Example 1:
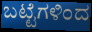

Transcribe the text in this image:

ಬಟ್ಟೆಗಳಿಂದ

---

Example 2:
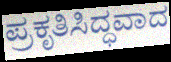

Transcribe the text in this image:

ಪ್ರಕೃತಿಸಿದ್ಧವಾದ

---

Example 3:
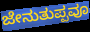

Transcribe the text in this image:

ಜೇನುತುಪ್ಪವೂ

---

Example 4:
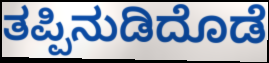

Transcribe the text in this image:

ತಪ್ಪಿನುಡಿದೊಡೆ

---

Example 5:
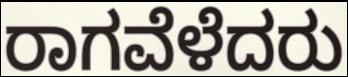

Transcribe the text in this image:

ರಾಗವೆಳೆದರು